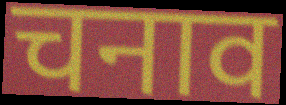
चनाव